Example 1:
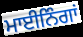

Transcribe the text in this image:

ਮਾਈਨਿੰਗਾਂ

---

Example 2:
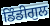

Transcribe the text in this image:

ਡਿੰਡੀਗੁਲ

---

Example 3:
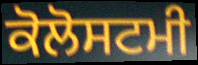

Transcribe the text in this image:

ਕੋਲੋਸਟਮੀ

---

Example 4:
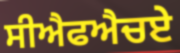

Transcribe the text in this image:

ਸੀਐਫਐਚਏ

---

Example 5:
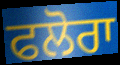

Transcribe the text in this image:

ਫਲੋਰਾ